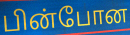
பின்போன